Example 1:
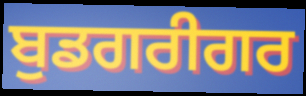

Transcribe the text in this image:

ਬੁਡਗਰੀਗਰ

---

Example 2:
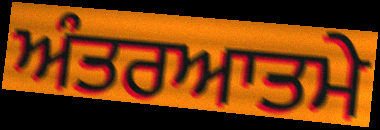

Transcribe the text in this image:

ਅੰਤਰਆਤਮੇ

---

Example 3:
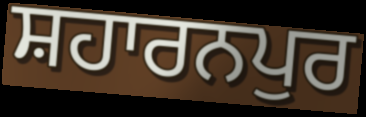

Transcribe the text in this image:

ਸ਼ਹਾਰਨਪੁਰ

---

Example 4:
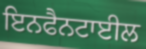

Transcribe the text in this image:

ਇਨਫੈਨਟਾਈਲ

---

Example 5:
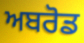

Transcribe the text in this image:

ਅਬਰੋਡ